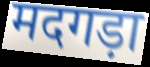
मदगड़ा